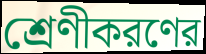
শ্রেণীকরণের